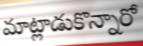
మాట్లాడుకొన్నారో